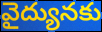
వైద్యునకు